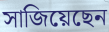
সাজিয়েছেন